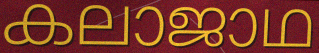
കലാജാഥ